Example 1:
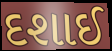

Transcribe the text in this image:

દશાઈ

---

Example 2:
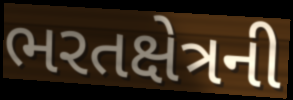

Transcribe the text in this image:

ભરતક્ષેત્રની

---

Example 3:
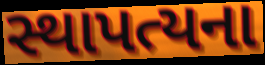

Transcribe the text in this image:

સ્થાપત્યના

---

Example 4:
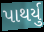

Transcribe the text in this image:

પાથર્યુ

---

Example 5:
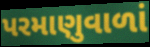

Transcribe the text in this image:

પરમાણુવાળાં